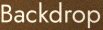
Backdrop